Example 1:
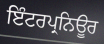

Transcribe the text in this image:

ਇੰਟਰਪ੍ਰਨਿਊਰ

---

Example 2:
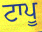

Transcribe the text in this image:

ਟਾਪੂ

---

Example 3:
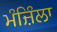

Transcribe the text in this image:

ਮੰਜ਼ਿੰਲਾ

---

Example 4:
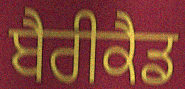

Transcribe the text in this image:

ਬੈਰੀਕੈਡ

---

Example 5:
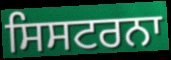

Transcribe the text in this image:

ਸਿਸਟਰਨਾ